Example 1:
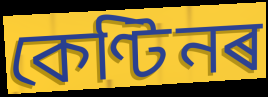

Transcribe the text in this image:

কেণ্টিনৰ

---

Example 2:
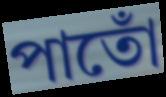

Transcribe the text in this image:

পাতোঁ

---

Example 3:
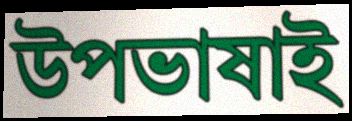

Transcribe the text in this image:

উপভাষাই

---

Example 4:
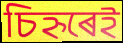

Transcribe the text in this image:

চিহ্নৰেই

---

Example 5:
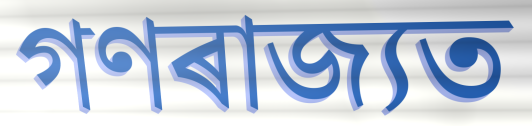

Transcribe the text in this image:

গণৰাজ্যত